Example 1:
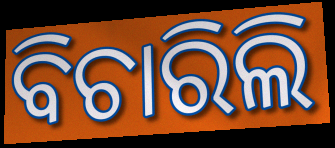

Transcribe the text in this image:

ବିଚାରିଲି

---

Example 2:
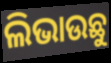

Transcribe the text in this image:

ଲିଭାଉଛୁ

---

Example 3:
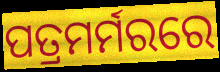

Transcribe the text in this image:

ପତ୍ରମର୍ମରରେ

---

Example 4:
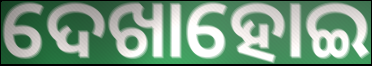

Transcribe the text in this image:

ଦେଖାହୋଇ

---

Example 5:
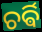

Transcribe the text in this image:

ଚର୍ଵି